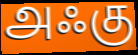
அஃகு